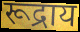
रूद्राय